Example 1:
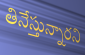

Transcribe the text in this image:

తినేస్తున్నారని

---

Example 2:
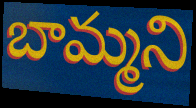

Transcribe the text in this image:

బామ్మని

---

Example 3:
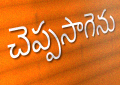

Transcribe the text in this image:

చెప్పసాగెను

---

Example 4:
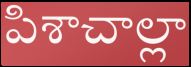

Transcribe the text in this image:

పిశాచాల్లా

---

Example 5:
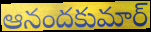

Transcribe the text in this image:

ఆనందకుమార్